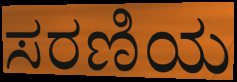
ಸರಣಿಯ